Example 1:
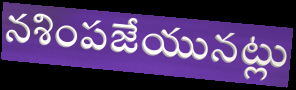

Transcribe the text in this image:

నశింపజేయునట్లు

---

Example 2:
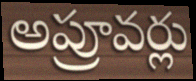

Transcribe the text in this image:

అప్రూవర్లు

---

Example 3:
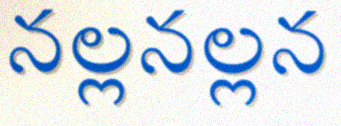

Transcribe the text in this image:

నల్లనల్లన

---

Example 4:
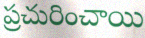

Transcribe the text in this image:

ప్రచురించాయి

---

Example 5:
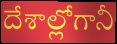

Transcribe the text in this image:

దేశాల్లోగానీ